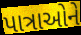
પાત્રાઓને